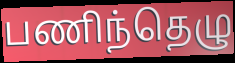
பணிந்தெழு